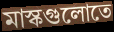
মাস্কগুলোতে